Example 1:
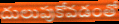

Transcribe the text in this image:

దులుపుకోవడంతో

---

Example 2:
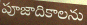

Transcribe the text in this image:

పూజాదికాలను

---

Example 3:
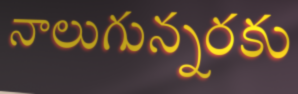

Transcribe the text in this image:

నాలుగున్నరకు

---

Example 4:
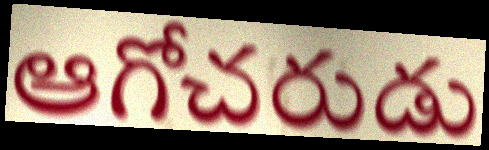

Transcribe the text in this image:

ఆగోచరుడు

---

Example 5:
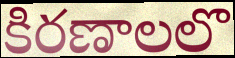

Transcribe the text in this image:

కిరణాలలొ